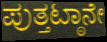
ಪುತ್ತಟ್ಠಾನೇ